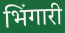
भिंगारी